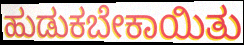
ಹುಡುಕಬೇಕಾಯಿತು